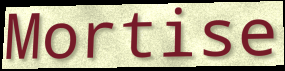
Mortise